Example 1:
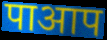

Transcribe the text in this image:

पाआप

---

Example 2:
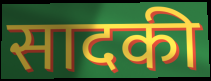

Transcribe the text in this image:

सादकी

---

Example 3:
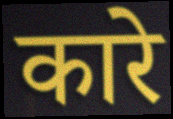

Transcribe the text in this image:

कारे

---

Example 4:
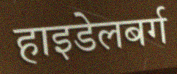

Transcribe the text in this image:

हाइडेलबर्ग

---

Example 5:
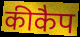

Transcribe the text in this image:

कीकैप